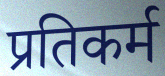
प्रतिकर्म